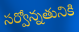
సర్వోన్నతునికి